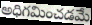
అధిగమించడమే